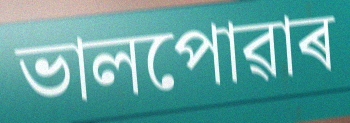
ভালপোৱাৰ